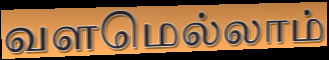
வளமெல்லாம்